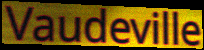
Vaudeville